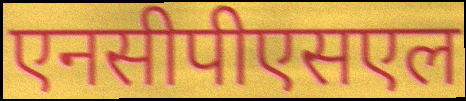
एनसीपीएसएल